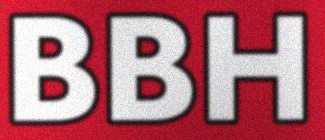
BBH